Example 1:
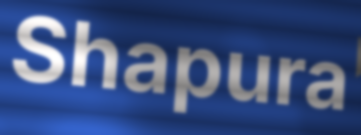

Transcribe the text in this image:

Shapura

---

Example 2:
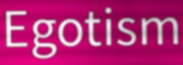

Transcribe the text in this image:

Egotism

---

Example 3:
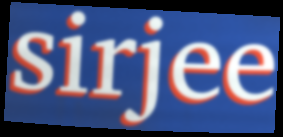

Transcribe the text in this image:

sirjee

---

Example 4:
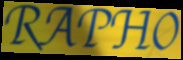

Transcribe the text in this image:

RAPHO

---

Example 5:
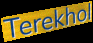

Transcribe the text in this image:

Terekhol